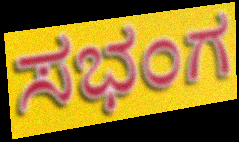
ಸಭಂಗ